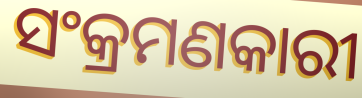
ସଂକ୍ରମଣକାରୀ